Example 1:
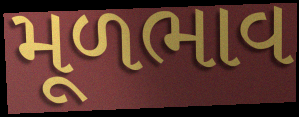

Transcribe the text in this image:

મૂળભાવ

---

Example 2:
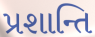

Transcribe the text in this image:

પ્રશાન્તિ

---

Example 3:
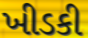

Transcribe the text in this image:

ખીડકી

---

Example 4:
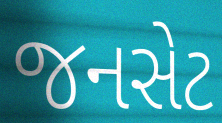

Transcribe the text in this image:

જનસેટ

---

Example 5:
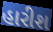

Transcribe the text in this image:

હારીશ